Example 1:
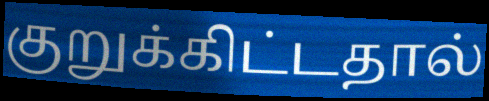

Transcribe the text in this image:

குறுக்கிட்டதால்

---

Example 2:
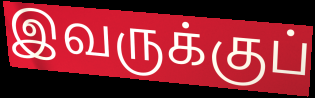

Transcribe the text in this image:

இவருக்குப்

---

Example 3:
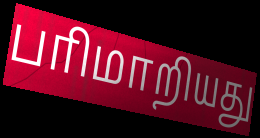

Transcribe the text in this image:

பரிமாறியது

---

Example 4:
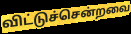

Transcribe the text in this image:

விட்டுச்சென்றவை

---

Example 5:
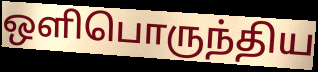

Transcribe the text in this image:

ஒளிபொருந்திய